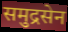
समुद्रसेन